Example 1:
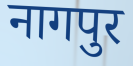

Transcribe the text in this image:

नागपुर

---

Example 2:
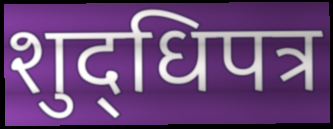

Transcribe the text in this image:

शुद्धिपत्र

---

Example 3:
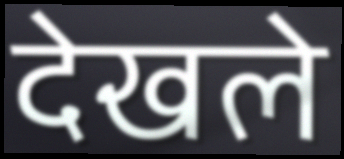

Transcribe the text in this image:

देखले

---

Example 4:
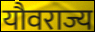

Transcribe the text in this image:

यौवराज्य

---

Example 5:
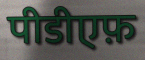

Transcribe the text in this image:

पीडीएफ़